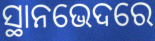
ସ୍ଥାନଭେଦରେ